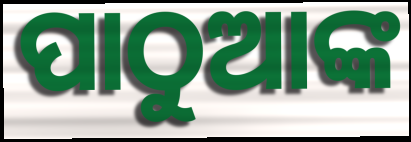
ପାଠୁଆଙ୍କ